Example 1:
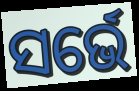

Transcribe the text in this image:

ସର୍ଭେ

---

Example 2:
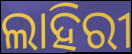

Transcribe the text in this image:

ଲାହିରୀ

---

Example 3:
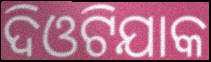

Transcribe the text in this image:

ଦିଓଟିଯାକ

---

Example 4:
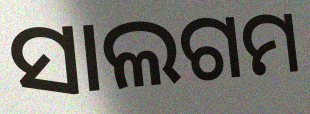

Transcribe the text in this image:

ସାଲଗମ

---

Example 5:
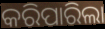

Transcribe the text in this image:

କରିପାରିଲା